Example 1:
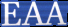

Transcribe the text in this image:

EAA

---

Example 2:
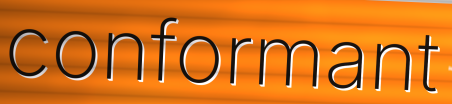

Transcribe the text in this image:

conformant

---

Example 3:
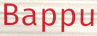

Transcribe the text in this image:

Bappu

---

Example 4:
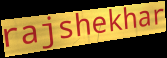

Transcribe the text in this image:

rajshekhar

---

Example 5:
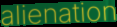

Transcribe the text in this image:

alienation